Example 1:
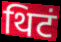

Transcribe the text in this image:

थिटं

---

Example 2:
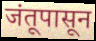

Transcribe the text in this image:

जंतूपासून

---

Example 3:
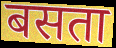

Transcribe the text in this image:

बसता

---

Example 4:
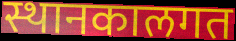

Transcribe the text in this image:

स्थानकालगत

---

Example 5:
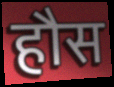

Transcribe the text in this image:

हौस